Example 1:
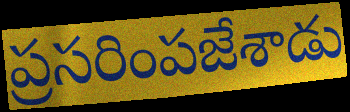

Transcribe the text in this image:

ప్రసరింపజేశాడు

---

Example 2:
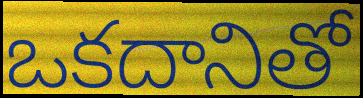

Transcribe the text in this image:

ఒకదానితో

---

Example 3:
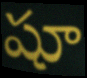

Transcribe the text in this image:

షూ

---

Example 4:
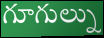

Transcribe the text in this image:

గూగుల్ను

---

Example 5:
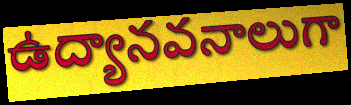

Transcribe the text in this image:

ఉద్యానవనాలుగా